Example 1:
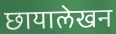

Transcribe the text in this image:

छायालेखन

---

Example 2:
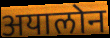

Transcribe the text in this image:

अयालोन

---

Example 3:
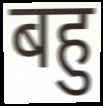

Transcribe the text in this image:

बहु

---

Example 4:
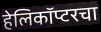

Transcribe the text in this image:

हेलिकॉप्टरचा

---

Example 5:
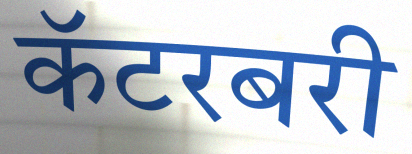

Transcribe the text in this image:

कॅटरबरी